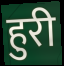
हुरी